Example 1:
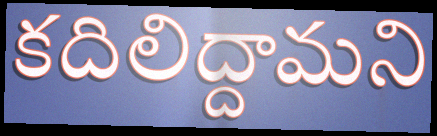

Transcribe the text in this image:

కదిలిద్దామని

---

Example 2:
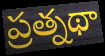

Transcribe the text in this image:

ప్రత్నథా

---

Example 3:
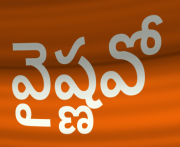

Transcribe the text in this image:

వైష్ణవో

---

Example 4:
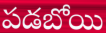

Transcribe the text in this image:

పడబోయి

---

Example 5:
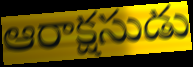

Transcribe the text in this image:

ఆరాక్షసుడు